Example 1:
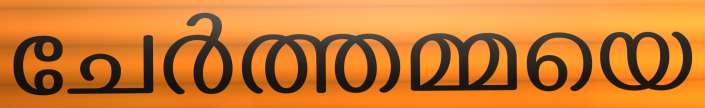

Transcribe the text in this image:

ചേർത്തമ്മയെ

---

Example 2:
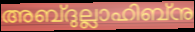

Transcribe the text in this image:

അബ്ദുല്ലാഹിബ്നു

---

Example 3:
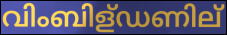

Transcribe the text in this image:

വിംബിള്ഡണില്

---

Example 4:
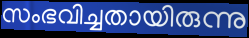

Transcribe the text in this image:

സംഭവിച്ചതായിരുന്നു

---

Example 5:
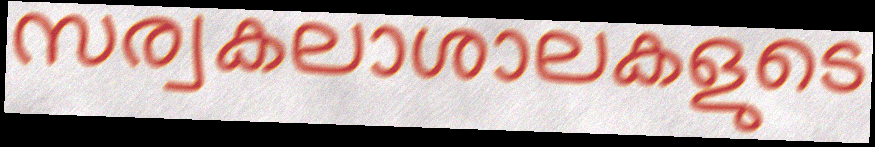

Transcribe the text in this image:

സര്വകലാശാലകളുടെ